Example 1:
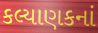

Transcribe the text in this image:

કલ્યાણકનાં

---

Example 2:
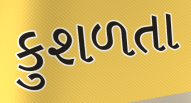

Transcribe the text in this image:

કુશળતા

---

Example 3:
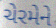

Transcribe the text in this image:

ચેરમેને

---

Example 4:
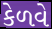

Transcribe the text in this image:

કેળવે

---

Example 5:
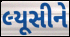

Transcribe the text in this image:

લ્યૂસીને